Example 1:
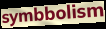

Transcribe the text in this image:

symbbolism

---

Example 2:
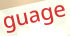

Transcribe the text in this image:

guage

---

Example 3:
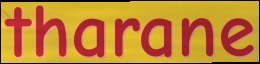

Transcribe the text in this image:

tharane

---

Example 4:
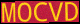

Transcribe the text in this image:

MOCVD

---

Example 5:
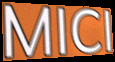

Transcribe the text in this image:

MICI